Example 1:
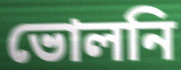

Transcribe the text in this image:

ভোলনি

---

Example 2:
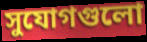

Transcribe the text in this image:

সুযোগগুলো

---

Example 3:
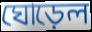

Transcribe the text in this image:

ঘোড়েল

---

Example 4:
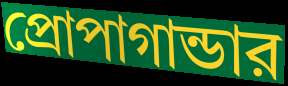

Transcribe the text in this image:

প্রোপাগান্ডার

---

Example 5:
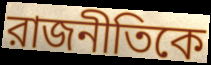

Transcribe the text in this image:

রাজনীতিকে